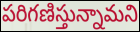
పరిగణిస్తున్నామని